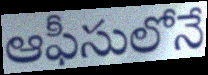
ఆఫీసులోనే